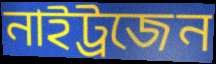
নাইট্ৰজেন